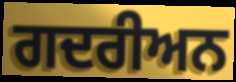
ਗਦਰੀਅਨ